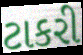
ટાકરી